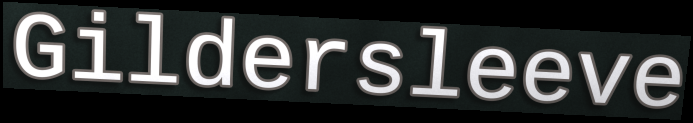
Gildersleeve